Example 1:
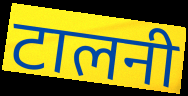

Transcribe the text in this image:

टालनी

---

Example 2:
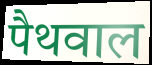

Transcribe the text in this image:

पैथवाल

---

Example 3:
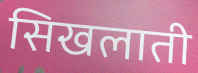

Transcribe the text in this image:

सिखलाती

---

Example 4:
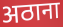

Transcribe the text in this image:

अठाना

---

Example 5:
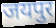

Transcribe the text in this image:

जयपुर